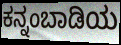
ಕನ್ನಂಬಾಡಿಯ